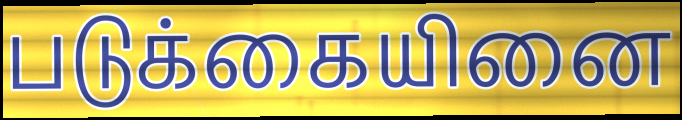
படுக்கையினை